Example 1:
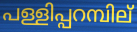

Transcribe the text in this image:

പള്ളിപ്പറമ്പില്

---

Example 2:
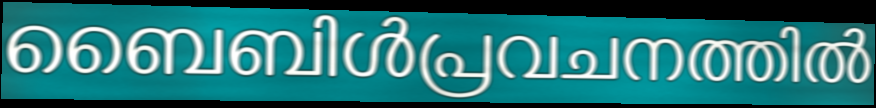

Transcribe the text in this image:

ബൈബിൾപ്രവചനത്തിൽ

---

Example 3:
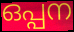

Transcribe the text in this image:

ഒപ്പന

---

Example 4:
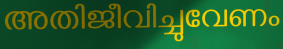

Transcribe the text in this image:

അതിജീവിച്ചുവേണം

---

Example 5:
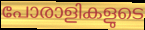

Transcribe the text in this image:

പോരാളികളുടെ